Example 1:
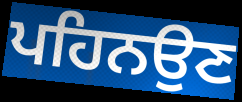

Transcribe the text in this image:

ਪਹਿਨਉਣ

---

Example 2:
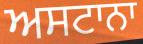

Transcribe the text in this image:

ਅਸਟਾਨਾ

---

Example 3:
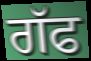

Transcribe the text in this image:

ਗੱਫ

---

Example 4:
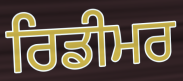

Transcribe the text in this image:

ਰਿਡੀਮਰ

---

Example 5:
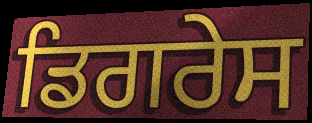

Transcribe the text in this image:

ਡਿਗਰੇਸ